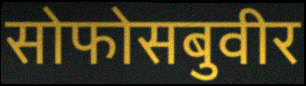
सोफोसबुवीर